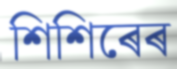
শিশিৰেৰ